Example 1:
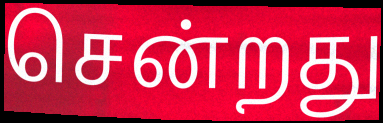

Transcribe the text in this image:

சென்றது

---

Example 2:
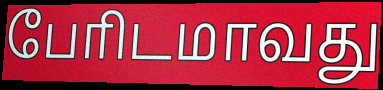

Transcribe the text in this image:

பேரிடமாவது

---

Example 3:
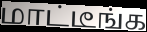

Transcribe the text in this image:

மாட்டீங்க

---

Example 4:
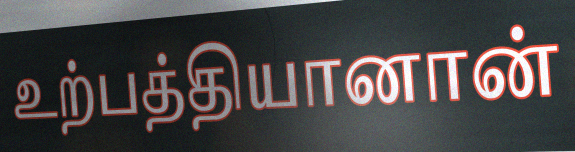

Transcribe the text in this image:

உற்பத்தியானான்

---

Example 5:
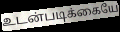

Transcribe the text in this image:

உடன்படிக்கையே